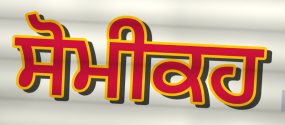
ਸੋਮੀਕਹ